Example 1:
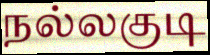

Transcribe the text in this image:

நல்லகுடி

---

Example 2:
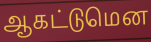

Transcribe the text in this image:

ஆகட்டுமென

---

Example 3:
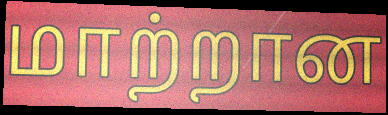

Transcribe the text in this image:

மாற்றான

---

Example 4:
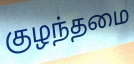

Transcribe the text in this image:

குழந்தமை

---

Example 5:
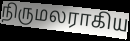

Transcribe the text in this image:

நிருமலராகிய